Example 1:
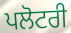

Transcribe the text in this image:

ਪਲੋਟਰੀ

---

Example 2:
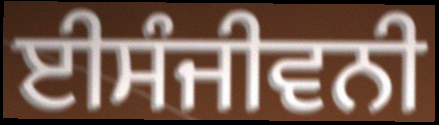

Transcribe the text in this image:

ਈਸੰਜੀਵਨੀ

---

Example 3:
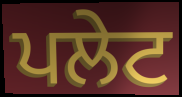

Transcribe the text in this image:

ਪਲੇਟ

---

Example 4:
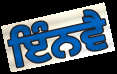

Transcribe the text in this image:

ਇੰਨਵੈ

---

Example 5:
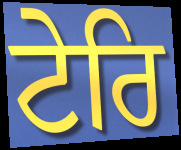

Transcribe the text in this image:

ਟੇਰਿ